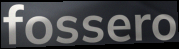
fossero